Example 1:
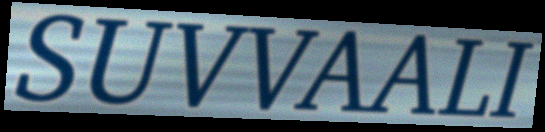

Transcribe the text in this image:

SUVVAALI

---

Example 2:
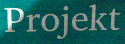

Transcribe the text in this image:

Projekt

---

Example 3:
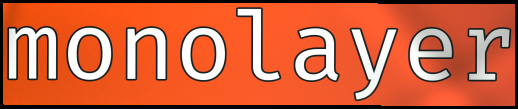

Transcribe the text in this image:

monolayer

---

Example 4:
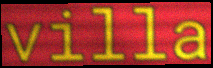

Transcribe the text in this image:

villa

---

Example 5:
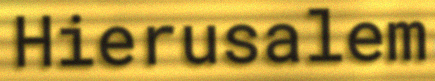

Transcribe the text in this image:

Hierusalem